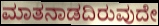
ಮಾತನಾಡದಿರುವುದೇ